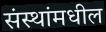
संस्थांमधील